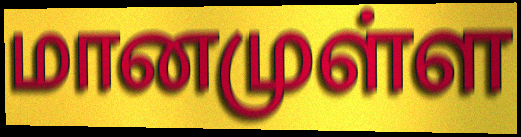
மானமுள்ள